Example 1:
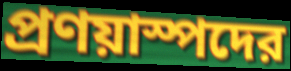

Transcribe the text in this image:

প্রণয়াস্পদের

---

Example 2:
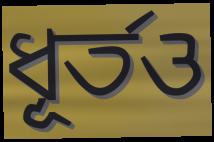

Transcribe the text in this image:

ধূর্তও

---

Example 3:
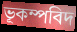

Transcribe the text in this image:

ভূকম্পবিদ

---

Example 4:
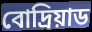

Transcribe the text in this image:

বোদ্রিয়াড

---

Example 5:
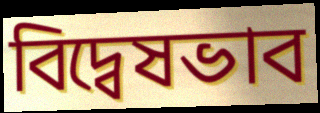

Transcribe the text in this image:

বিদ্বেষভাব